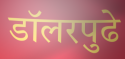
डॉलरपुढे